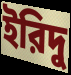
ইরিদু